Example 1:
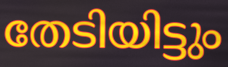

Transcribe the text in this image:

തേടിയിട്ടും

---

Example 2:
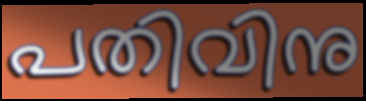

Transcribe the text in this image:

പതിവിനു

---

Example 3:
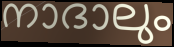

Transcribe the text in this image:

നാദാലും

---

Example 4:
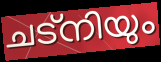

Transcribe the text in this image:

ചട്നിയും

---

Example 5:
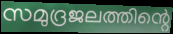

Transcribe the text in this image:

സമുദ്രജലത്തിന്റെ